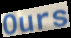
Ours